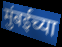
मुंबईच्या